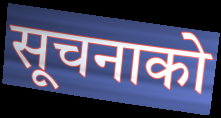
सूचनाको